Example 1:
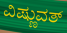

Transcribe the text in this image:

ವಿಷ್ಣುವತ್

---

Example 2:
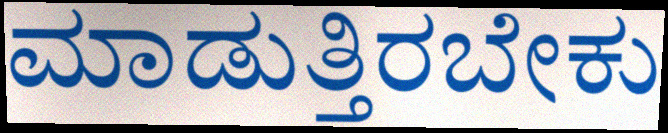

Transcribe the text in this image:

ಮಾಡುತ್ತಿರಬೇಕು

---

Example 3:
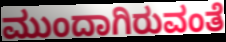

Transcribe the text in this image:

ಮುಂದಾಗಿರುವಂತೆ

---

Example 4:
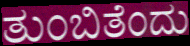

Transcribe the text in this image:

ತುಂಬಿತೆಂದು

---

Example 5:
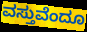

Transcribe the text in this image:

ವಸ್ತುವೆಂದೂ